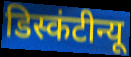
डिस्कंटीन्यू